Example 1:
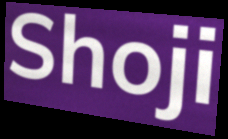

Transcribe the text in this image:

Shoji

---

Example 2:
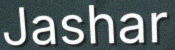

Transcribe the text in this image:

Jashar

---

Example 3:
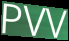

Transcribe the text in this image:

PVV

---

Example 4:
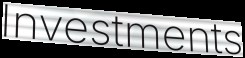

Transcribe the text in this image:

Investments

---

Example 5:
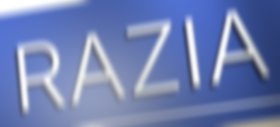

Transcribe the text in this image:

RAZIA